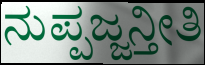
ನುಪ್ಪಜ್ಜನ್ತೀತಿ